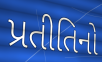
પ્રતીતિનો